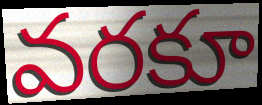
వరకూ